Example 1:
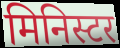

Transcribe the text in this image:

मिनिस्टर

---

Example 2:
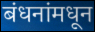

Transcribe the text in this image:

बंधनांमधून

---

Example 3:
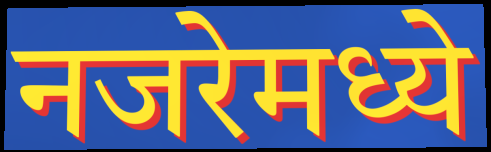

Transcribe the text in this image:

नजरेमध्ये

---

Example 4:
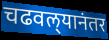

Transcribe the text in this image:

चढवल्यानंतर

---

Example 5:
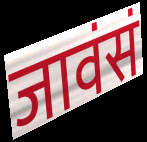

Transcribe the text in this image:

जावंसं